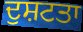
ਦੁਸ਼ਟਤਾ